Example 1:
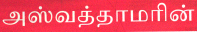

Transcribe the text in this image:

அஸ்வத்தாமரின்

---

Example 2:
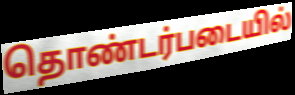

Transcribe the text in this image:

தொண்டர்படையில்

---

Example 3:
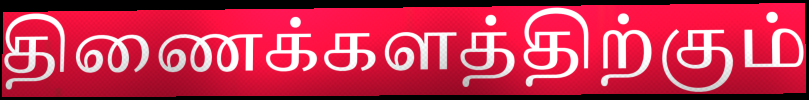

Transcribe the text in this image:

திணைக்களத்திற்கும்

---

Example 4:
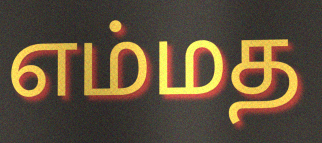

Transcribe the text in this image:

எம்மத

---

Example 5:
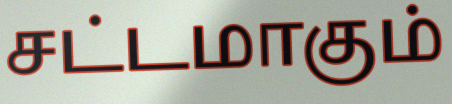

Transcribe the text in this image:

சட்டமாகும்